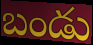
బండు